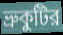
ভ্রুকুটির